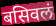
बसिवलं